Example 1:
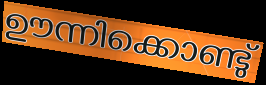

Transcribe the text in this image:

ഊന്നിക്കൊണ്ടു്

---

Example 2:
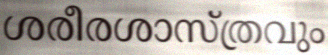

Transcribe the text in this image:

ശരീരശാസ്ത്രവും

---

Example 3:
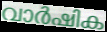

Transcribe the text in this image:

വാർഷിക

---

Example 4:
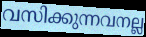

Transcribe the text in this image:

വസിക്കുന്നവനല്ല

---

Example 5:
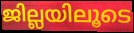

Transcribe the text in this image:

ജില്ലയിലൂടെ